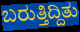
ಬರುತ್ತಿದ್ದಿತು